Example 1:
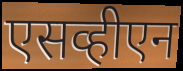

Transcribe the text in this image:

एसव्हीएन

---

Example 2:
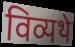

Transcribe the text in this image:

विव्यथे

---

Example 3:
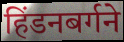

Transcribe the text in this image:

हिंडनबर्गने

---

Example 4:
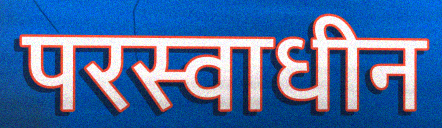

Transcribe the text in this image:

परस्वाधीन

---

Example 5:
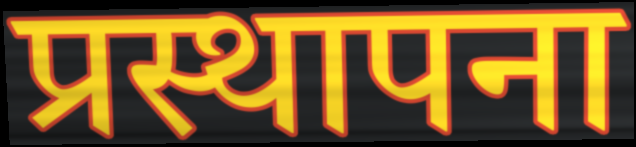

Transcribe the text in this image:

प्रस्थापना